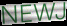
NEWJ